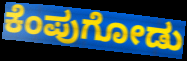
ಕೆಂಪುಗೋಡು